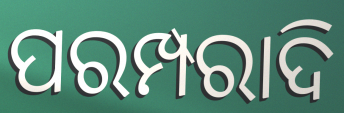
ପରମ୍ପରାଦି